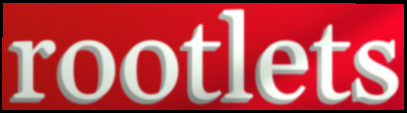
rootlets